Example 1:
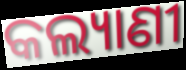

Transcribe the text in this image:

କଲ୍ୟାଣୀ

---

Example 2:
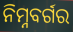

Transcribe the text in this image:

ନିମ୍ନବର୍ଗର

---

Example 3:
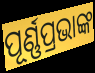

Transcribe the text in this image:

ପୂର୍ଣ୍ଣପ୍ରଭାଙ୍କ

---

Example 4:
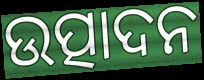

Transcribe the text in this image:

ଉତ୍ପାଦନ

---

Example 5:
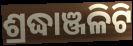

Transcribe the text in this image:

ଶ୍ରଦ୍ଧାଞ୍ଜଳିଟି